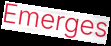
Emerges